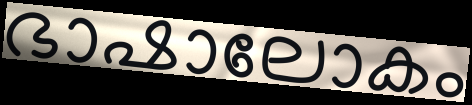
ഭാഷാലോകം